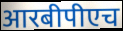
आरबीपीएच